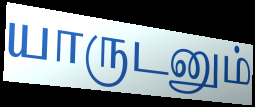
யாருடனும்